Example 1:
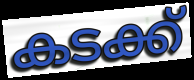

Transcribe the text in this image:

കടക്ക്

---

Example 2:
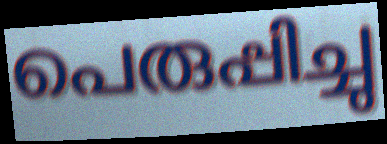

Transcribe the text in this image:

പെരുപ്പിച്ചു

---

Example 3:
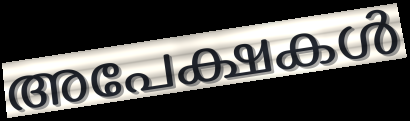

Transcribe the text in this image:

അപേക്ഷകൾ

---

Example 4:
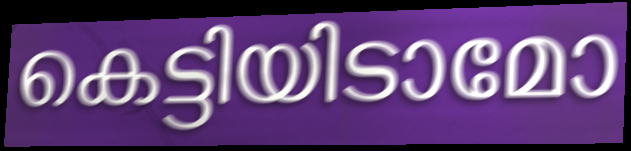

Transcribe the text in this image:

കെട്ടിയിടാമോ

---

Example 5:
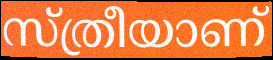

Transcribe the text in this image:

സ്ത്രീയാണ്